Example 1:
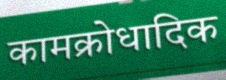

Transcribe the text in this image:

कामक्रोधादिक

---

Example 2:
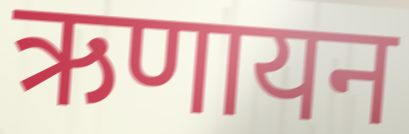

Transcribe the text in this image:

ऋणायन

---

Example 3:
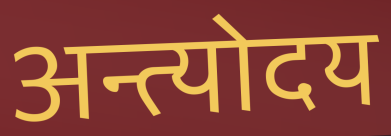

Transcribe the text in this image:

अन्त्योदय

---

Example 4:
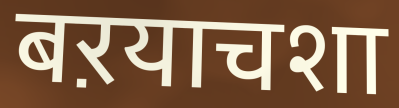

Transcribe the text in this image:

बऱयाचशा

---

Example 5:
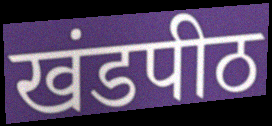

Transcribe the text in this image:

खंडपीठ